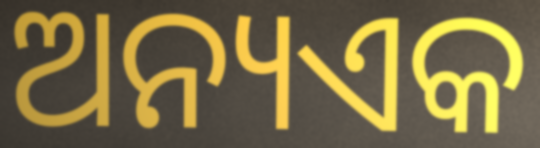
ଅନ୍ୟଏକ